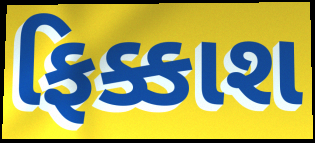
ફિક્કાશ